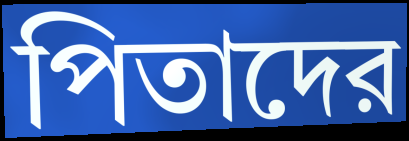
পিতাদের